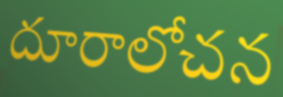
దూరాలోచన